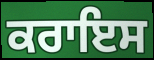
ਕਰਾਇਸ